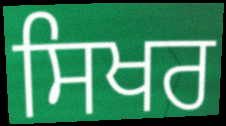
ਸਿਖਰ